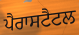
ਪੈਰਾਸਟੈਟਲ